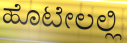
ಹೊಟೇಲಲ್ಲಿ